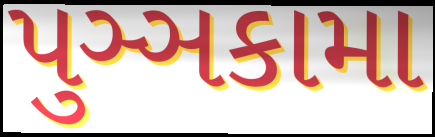
પુઞ્ઞકામા